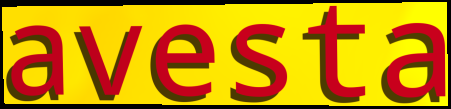
avesta